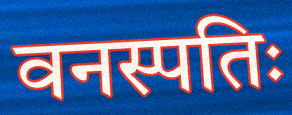
वनस्पतिः